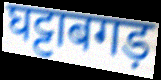
घट्टाबगड़